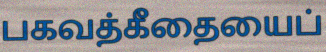
பகவத்கீதையைப்